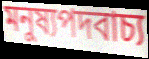
মনুষ্যপদবাচ্য